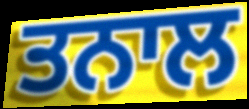
ਤਨਾਲ